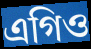
এগিও